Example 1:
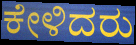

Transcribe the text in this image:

ಕೇಳಿದರು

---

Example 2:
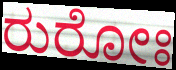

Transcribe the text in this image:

ರುರೋಃ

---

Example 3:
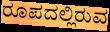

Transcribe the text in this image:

ರೂಪದಲ್ಲಿರುವ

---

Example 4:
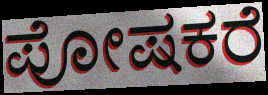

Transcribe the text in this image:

ಪೋಷಕರೆ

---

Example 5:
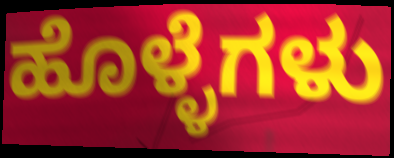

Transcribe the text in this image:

ಹೊಳ್ಳೆಗಳು